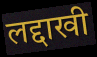
लद्दाखी